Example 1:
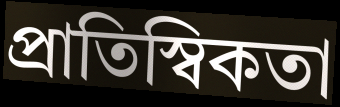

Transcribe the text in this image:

প্রাতিস্বিকতা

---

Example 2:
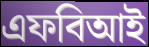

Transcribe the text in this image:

এফবিআই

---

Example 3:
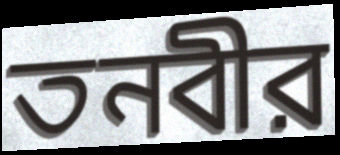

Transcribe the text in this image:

তনবীর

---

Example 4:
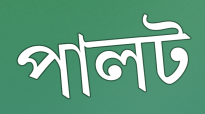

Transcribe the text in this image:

পালট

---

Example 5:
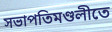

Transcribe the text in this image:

সভাপতিমণ্ডলীতে